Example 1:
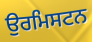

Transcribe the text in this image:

ਉਰਮਿਸਟਨ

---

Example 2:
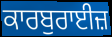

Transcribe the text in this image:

ਕਾਰਬੁਰਾਈਜ਼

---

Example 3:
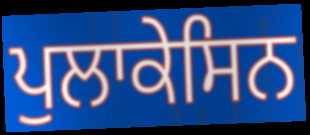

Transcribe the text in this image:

ਪੁਲਾਕੇਸਿਨ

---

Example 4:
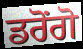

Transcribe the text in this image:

ਡਰੋਂਗੋ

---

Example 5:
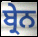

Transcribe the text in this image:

ਬ੍ਰੇਨ